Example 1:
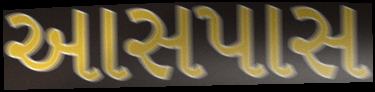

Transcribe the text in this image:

આસપાસ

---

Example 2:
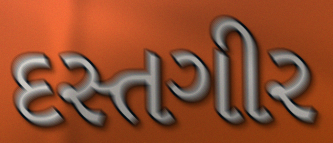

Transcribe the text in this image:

દસ્તગીર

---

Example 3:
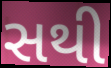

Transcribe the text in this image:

સથી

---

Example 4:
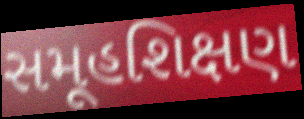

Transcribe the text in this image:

સમૂહશિક્ષણ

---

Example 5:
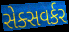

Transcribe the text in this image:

સેક્સવર્કર